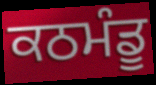
ਕਠਮੰਡੂ